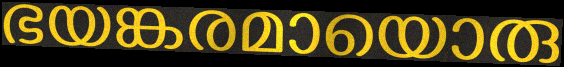
ഭയങ്കരമായൊരു